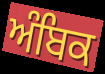
ਅੰਬਿਕ